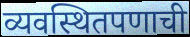
व्यवस्थितपणाची